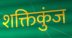
शक्तिकुंज